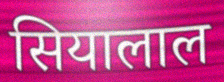
सियालाल